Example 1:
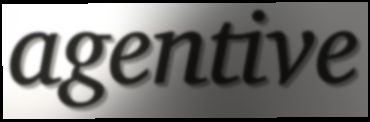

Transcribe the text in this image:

agentive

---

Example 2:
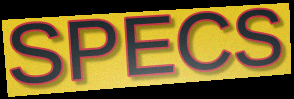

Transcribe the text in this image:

SPECS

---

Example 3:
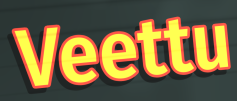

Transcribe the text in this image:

Veettu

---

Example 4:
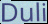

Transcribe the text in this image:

Duli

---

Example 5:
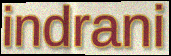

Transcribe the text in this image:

indrani